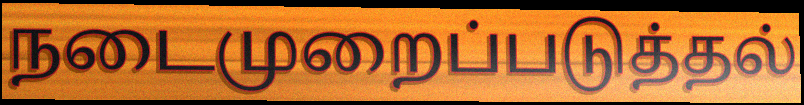
நடைமுறைப்படுத்தல்